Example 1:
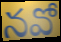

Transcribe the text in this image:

నవో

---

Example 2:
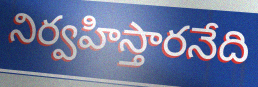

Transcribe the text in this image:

నిర్వహిస్తారనేది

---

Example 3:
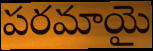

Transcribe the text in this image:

పరమాయై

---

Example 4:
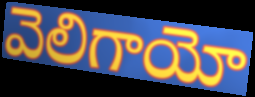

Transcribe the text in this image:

వెలిగాయో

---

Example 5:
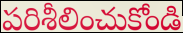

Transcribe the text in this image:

పరిశీలించుకోండి